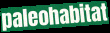
paleohabitat